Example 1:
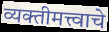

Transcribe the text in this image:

व्यक्तीमत्त्वाचे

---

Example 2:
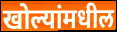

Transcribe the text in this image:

खोल्यांमधील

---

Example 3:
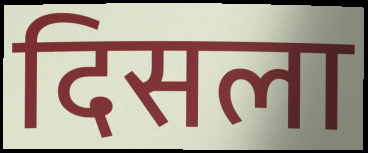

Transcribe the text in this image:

दिसला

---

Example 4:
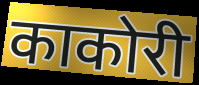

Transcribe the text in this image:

काकोरी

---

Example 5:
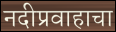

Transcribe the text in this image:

नदीप्रवाहाचा